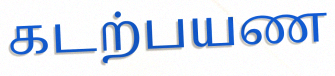
கடற்பயண